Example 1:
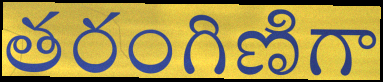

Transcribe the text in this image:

తరంగిణిగా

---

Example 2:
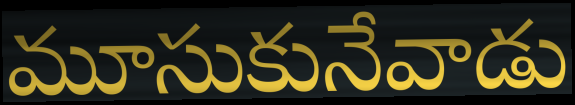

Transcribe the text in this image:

మూసుకునేవాడు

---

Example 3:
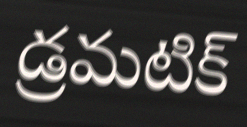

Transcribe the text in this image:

డ్రమటిక్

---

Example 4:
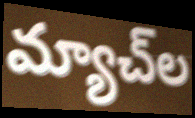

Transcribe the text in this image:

మ్యాచ్‌ల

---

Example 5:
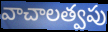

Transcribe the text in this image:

వాచాలత్వపు